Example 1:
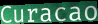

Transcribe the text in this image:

Curacao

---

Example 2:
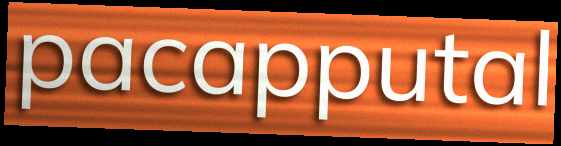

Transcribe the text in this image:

pacapputal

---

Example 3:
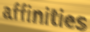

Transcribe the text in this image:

affinities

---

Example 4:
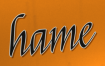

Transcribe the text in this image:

hame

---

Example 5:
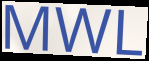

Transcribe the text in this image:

MWL